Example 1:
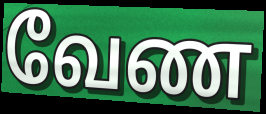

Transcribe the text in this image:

வேண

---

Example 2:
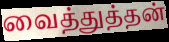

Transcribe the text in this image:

வைத்துத்தன்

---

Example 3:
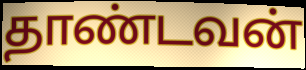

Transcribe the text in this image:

தாண்டவன்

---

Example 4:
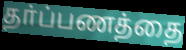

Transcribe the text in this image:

தர்ப்பணத்தை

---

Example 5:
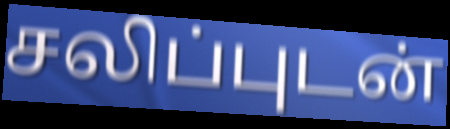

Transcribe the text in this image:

சலிப்புடன்